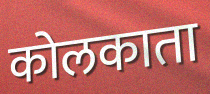
कोलकाता